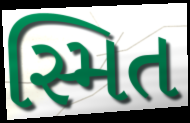
સ્મિત